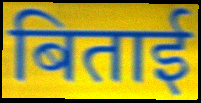
बिताई